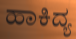
ಹಾಕಿದ್ಯ